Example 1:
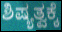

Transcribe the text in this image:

ಶಿಷ್ಯತ್ವಕ್ಕೆ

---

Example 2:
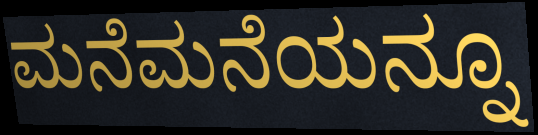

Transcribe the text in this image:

ಮನೆಮನೆಯನ್ನೂ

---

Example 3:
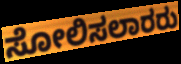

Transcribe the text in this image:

ಸೋಲಿಸಲಾರರು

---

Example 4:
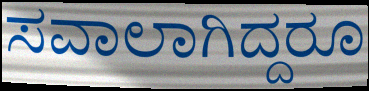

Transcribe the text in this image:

ಸವಾಲಾಗಿದ್ದರೂ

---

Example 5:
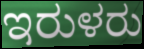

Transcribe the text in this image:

ಇರುಳರು